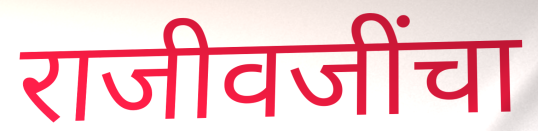
राजीवजींचा